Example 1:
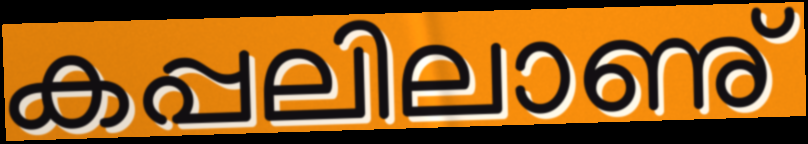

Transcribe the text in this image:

കപ്പലിലാണു്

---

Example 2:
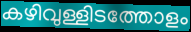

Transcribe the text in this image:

കഴിവുള്ളിടത്തോളം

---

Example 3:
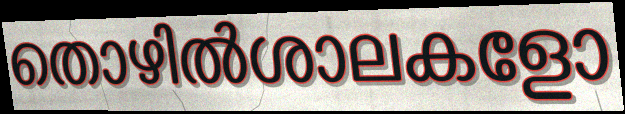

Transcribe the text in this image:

തൊഴിൽശാലകളോ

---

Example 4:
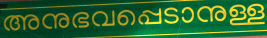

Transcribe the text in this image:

അനുഭവപ്പെടാനുള്ള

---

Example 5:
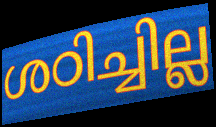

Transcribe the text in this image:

ശഠിച്ചില്ല